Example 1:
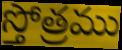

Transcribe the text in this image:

స్తోత్రము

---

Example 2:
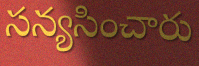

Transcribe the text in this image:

సన్యసించారు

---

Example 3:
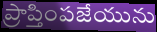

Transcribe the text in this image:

ప్రాప్తింపజేయును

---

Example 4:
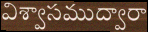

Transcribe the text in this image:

విశ్వాసముద్వారా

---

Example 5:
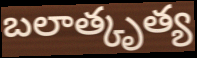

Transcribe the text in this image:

బలాత్కృత్య